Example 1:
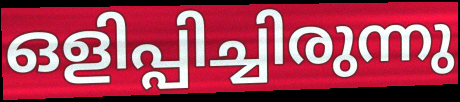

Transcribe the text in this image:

ഒളിപ്പിച്ചിരുന്നു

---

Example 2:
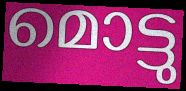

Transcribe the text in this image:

മൊട്ടു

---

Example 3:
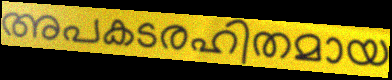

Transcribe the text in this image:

അപകടരഹിതമായ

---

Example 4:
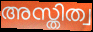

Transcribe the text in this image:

അസ്തിത്വ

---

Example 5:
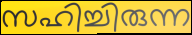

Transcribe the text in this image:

സഹിച്ചിരുന്ന